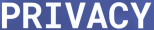
PRIVACY